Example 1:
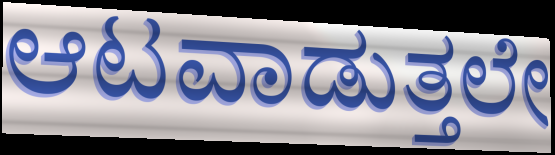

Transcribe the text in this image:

ಆಟವಾಡುತ್ತಲೇ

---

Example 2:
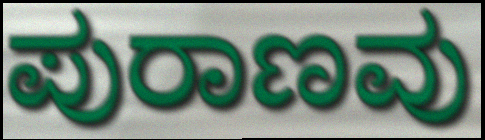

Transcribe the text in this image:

ಪುರಾಣವು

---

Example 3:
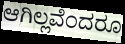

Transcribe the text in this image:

ಆಗಿಲ್ಲವೆಂದರೂ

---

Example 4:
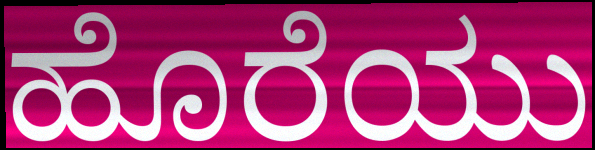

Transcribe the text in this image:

ಹೊರೆಯು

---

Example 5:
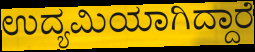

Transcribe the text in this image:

ಉದ್ಯಮಿಯಾಗಿದ್ದಾರೆ